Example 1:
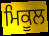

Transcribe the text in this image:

ਮਿਕੂਲ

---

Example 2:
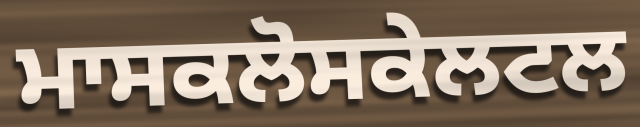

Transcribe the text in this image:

ਮਾਸਕਲੋਸਕੇਲਟਲ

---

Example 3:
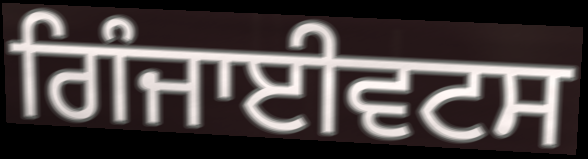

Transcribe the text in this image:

ਗਿੰਜਾਈਵਟਸ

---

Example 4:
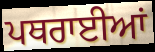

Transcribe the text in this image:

ਪਥਰਾਈਆਂ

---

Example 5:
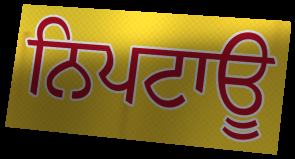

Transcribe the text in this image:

ਨਿਪਟਾਊ